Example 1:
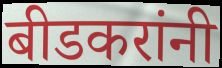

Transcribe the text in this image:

बीडकरांनी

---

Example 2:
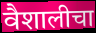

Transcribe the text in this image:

वैशालीचा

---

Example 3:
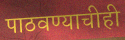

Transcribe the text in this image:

पाठवण्याचीही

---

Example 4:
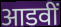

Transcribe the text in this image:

आडवीं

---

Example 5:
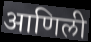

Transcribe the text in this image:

आणिली